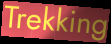
Trekking